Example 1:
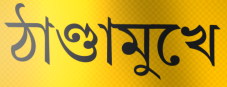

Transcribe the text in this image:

ঠাণ্ডামুখে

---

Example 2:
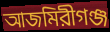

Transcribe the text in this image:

আজমিরীগঞ্জ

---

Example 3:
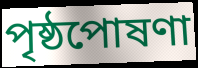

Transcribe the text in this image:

পৃষ্ঠপোষণা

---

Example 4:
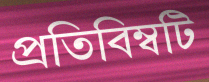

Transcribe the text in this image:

প্রতিবিম্বটি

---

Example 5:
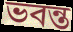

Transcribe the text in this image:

ভবন্ত